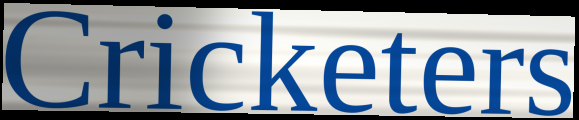
Cricketers